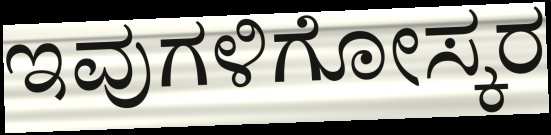
ಇವುಗಳಿಗೋಸ್ಕರ